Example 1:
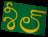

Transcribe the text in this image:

శీల్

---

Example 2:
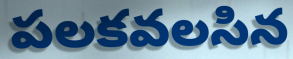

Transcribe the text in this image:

పలకవలసిన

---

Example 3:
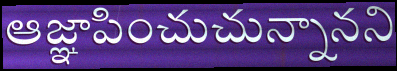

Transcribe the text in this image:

ఆజ్ఞాపించుచున్నానని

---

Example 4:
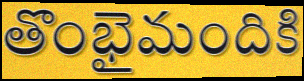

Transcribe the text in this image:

తొంభైమందికి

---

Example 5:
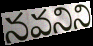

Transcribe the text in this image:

నవనిని